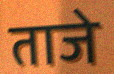
ताजे